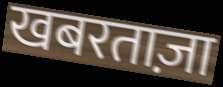
खबरताज़ा